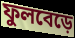
ফুলবেড়ে